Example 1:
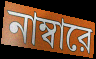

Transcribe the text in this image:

নাম্বারে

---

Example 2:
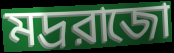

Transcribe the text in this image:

মদ্ররাজো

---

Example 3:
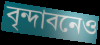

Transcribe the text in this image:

বৃন্দাবনেও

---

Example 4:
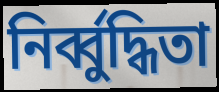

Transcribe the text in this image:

নির্ব্বুদ্ধিতা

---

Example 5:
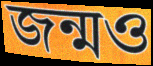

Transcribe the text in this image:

জন্মও